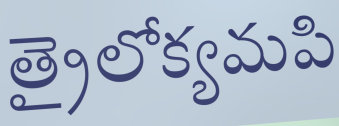
త్రైలోక్యమపి